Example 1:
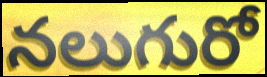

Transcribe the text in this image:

నలుగురో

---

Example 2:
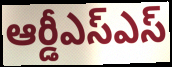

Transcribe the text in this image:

ఆర్డీఎస్ఎస్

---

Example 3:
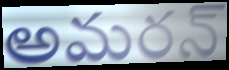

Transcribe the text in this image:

అమరన్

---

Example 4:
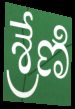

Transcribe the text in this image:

శ్రేణి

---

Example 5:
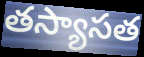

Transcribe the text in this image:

తస్యాసత